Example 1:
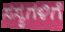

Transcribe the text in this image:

ಸಸ್ಯಗಳಿಗೆ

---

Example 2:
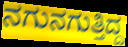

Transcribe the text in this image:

ನಗುನಗುತ್ತಿದ್ದ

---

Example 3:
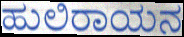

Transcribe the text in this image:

ಹುಲಿರಾಯನ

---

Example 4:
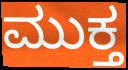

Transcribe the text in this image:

ಮುಕ್ತ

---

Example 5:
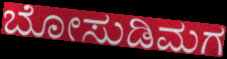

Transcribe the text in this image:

ಬೋಸುಡಿಮಗ